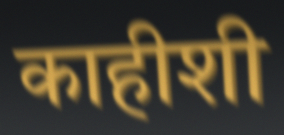
काहीशी